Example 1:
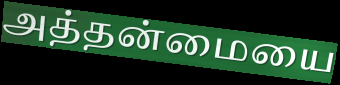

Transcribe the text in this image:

அத்தன்மையை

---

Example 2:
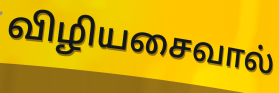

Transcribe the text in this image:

விழியசைவால்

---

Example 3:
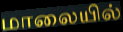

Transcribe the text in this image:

மாலையில்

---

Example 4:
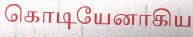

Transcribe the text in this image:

கொடியேனாகிய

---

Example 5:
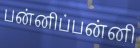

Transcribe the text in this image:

பன்னிப்பன்னி